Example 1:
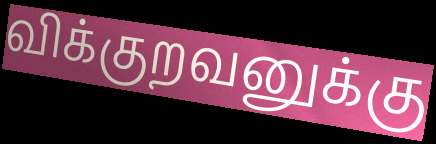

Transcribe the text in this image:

விக்குறவனுக்கு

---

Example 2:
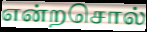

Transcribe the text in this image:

என்றசொல்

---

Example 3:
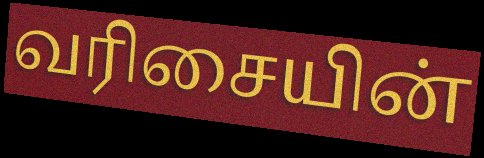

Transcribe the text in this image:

வரிசையின்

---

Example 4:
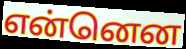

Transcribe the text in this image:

என்னென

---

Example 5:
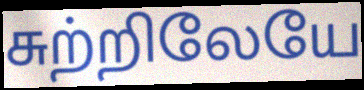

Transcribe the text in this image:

சுற்றிலேயே